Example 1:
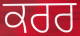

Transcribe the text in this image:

ਕਰਰ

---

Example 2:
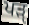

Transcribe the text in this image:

ਪੜੵ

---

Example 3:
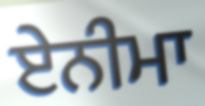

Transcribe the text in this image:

ਏਨੀਮਾ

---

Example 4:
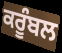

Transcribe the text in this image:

ਕਰੂੰਬਲ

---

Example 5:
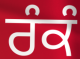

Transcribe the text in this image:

ਰੰਕੰ